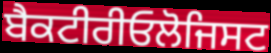
ਬੈਕਟੀਰੀਓਲੋਜਿਸਟ